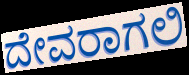
ದೇವರಾಗಲಿ